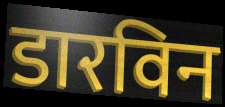
डारविन